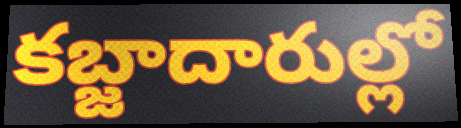
కబ్జాదారుల్లో